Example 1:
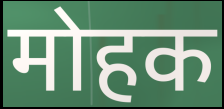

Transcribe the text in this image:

मोहक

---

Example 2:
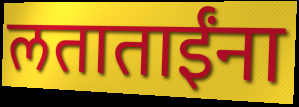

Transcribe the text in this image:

लताताईंना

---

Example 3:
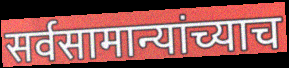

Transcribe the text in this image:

सर्वसामान्यांच्याच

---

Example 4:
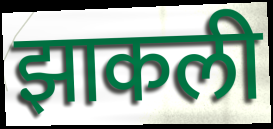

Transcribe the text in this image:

झाकली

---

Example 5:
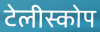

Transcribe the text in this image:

टेलीस्कोप